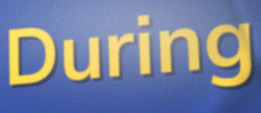
During